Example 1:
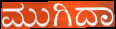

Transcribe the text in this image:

ಮುಗಿದಾ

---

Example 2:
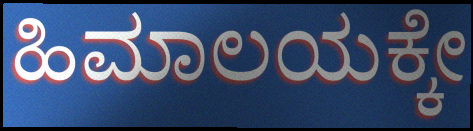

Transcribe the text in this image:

ಹಿಮಾಲಯಕ್ಕೇ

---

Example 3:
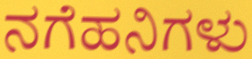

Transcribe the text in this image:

ನಗೆಹನಿಗಳು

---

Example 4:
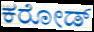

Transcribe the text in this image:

ಕರೋಡ್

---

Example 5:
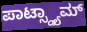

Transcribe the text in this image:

ಪಾಟ್ಸ್ಡ್ಯಾಮ್